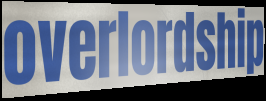
overlordship